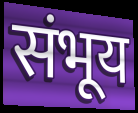
संभूय